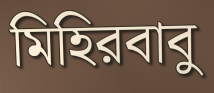
মিহিরবাবু